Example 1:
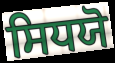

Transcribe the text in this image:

ਸਿਧਯੋ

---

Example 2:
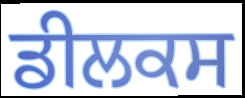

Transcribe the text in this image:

ਡੀਲਕਸ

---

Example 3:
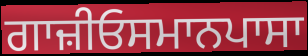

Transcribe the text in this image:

ਗਾਜ਼ੀਓਸਮਾਨਪਾਸਾ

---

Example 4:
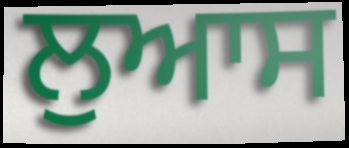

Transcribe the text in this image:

ਲੁਆਸ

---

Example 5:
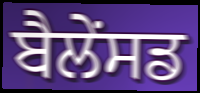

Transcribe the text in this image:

ਬੈਲੇਂਸਡ